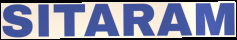
SITARAM